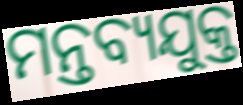
ମନ୍ତବ୍ୟଯୁକ୍ତ